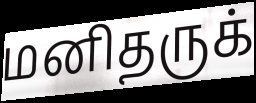
மனிதருக்